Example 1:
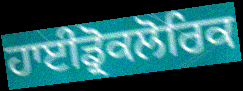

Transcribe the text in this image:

ਹਾਈਡ੍ਰੋਕਲੋਰਿਕ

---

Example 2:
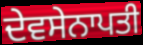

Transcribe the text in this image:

ਦੇਵਸੇਨਾਪਤੀ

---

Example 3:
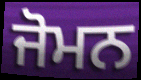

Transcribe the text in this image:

ਜੋਮਨ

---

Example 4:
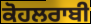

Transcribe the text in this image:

ਕੋਹਲਰਾਬੀ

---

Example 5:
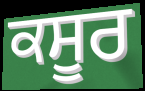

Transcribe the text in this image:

ਕਸੂਰ